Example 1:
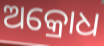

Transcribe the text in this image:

ଅକ୍ରୋଧ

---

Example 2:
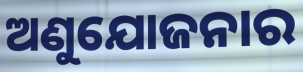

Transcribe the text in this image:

ଅଣୁଯୋଜନାର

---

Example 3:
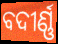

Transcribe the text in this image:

ବଦୀର୍ଣ୍ଣ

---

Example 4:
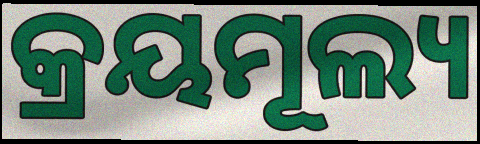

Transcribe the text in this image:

କ୍ରୟମୂଲ୍ୟ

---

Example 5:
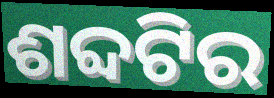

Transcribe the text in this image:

ଶବ୍ଦଟିର